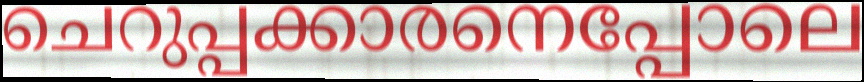
ചെറുപ്പക്കാരനെപ്പോലെ